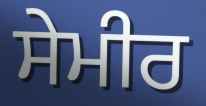
ਸੇਮੀਰ